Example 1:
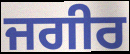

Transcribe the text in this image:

ਜਗੀਰ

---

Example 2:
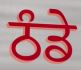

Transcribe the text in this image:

ਠੰਡੇ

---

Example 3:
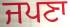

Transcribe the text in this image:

ਜਪਣਾ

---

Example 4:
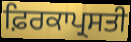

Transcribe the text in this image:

ਫ਼ਿਰਕਾਪ੍ਰਸਤੀ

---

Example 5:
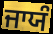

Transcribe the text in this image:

ਜਾਯੰ